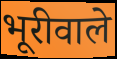
भूरीवाले